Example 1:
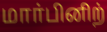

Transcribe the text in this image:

மார்பினிற்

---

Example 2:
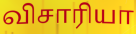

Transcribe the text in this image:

விசாரியா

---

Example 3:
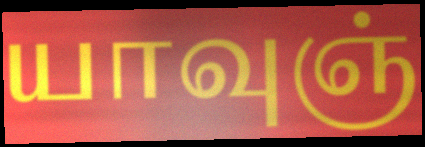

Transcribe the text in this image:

யாவுஞ்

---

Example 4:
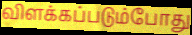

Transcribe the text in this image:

விளக்கப்படும்போது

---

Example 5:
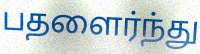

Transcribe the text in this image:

பதளைர்ந்து